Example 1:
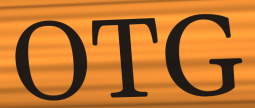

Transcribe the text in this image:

OTG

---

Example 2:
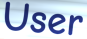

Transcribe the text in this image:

User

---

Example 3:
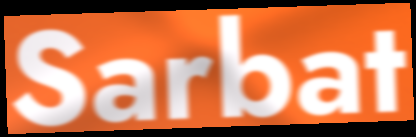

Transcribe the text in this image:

Sarbat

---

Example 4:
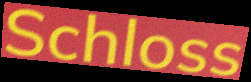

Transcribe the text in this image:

Schloss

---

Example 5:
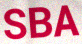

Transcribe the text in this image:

SBA